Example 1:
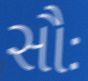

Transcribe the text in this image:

સૌઃ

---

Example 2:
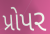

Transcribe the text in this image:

પ્રોપર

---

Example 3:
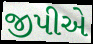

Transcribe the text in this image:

જીપીએ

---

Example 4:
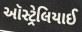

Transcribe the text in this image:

ઑસ્ટ્રેલિયાઈ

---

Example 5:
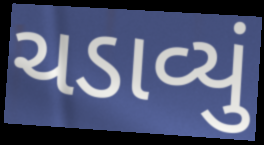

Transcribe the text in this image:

ચડાવ્યું